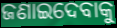
ଜଣାଇଦେବାକୁ